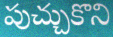
పుచ్చుకొని